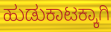
ಹುಡುಕಾಟಕ್ಕಾಗಿ